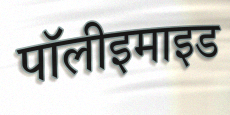
पॉलीइमाइड